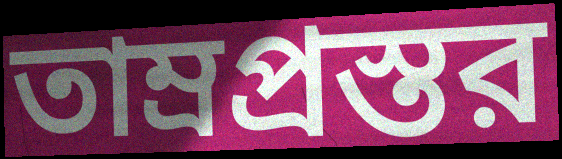
তাম্রপ্রস্তর